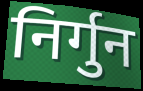
निर्गुन